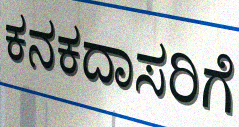
ಕನಕದಾಸರಿಗೆ